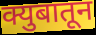
क्युबातून